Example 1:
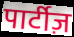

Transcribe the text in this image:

पार्टीज़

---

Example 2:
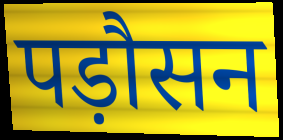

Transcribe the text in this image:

पड़ौसन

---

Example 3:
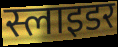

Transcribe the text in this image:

स्लाइडर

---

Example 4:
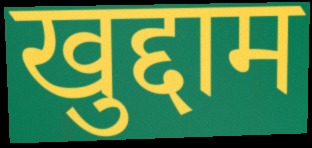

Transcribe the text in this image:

खुद्दाम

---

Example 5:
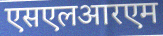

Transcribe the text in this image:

एसएलआरएम